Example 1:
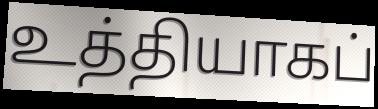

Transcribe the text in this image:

உத்தியாகப்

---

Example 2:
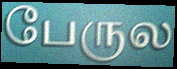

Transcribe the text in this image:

பேருல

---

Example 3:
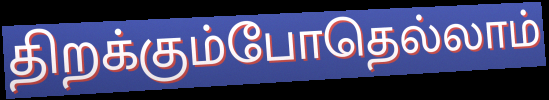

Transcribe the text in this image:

திறக்கும்போதெல்லாம்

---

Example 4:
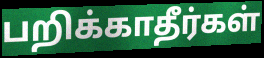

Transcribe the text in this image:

பறிக்காதீர்கள்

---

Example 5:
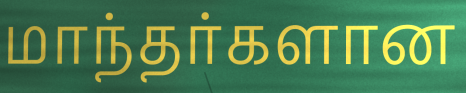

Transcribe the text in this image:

மாந்தர்களான